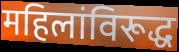
महिलांविरूद्ध